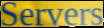
Servers